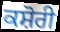
ਕਸ਼ੋਰੀ